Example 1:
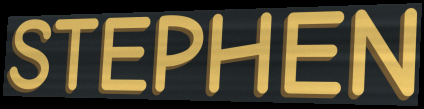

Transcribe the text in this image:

STEPHEN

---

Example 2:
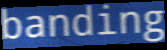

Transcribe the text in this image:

banding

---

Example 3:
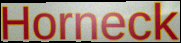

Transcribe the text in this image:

Horneck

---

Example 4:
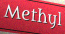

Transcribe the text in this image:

Methyl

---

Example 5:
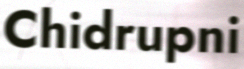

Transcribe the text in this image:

Chidrupni